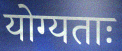
योग्यताः